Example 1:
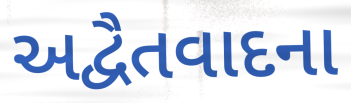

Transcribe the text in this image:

અદ્વૈતવાદના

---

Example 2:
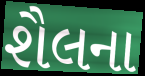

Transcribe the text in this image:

શૈલના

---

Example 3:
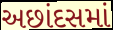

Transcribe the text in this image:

અછાંદસમાં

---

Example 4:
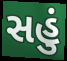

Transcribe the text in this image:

સહું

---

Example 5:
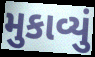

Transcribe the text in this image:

મુકાવ્યું